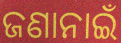
ଜଣାନାଇଁ